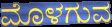
ಮೊಳಗುವ